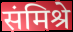
संमिश्रे